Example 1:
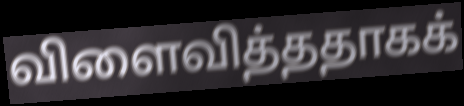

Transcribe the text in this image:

விளைவித்ததாகக்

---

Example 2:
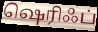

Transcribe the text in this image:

ஷெரிஃப்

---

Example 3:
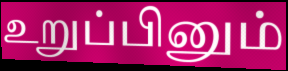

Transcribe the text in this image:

உறுப்பினும்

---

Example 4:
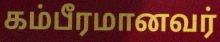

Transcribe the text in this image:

கம்பீரமானவர்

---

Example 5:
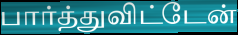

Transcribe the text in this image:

பார்த்துவிட்டேன்